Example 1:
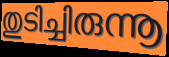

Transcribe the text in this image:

തുടിച്ചിരുന്നൂ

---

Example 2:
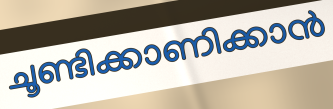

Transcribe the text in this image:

ചൂണ്ടിക്കാണിക്കാൻ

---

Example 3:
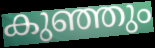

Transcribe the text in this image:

കുഞ്ഞും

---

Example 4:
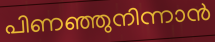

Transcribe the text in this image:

പിണഞ്ഞുനിന്നാൻ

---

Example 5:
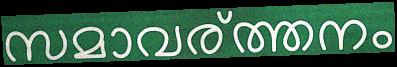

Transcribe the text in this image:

സമാവര്ത്തനം